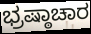
ಭ್ರಷ್ಠಾಚಾರ